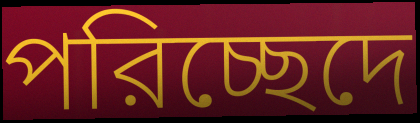
পরিচ্ছেদে